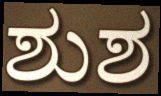
ಶುಶ